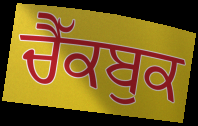
ਚੈੱਕਬੁਕ